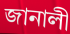
জানালী